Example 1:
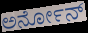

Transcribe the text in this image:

ಅರ್ನೋನ್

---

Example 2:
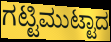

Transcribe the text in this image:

ಗಟ್ಟಿಮುಟ್ಟಾದ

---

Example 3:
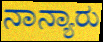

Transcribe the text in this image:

ನಾನ್ಯಾರು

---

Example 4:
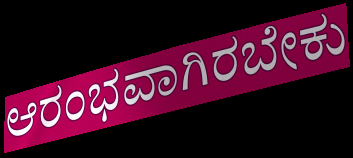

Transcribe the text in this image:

ಆರಂಭವಾಗಿರಬೇಕು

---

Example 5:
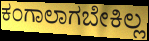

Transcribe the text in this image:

ಕಂಗಾಲಾಗಬೇಕಿಲ್ಲ